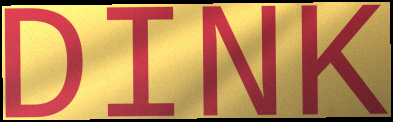
DINK